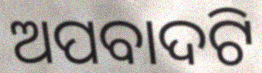
ଅପବାଦଟି